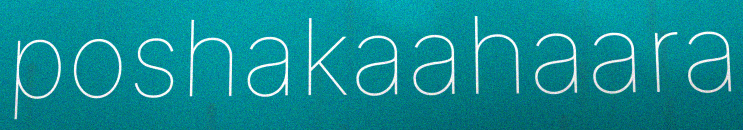
poshakaahaara